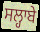
ਸਲ੍ਹਾਬੇ